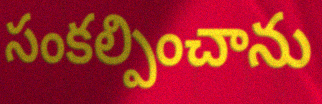
సంకల్పించాను